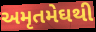
અમૃતમેઘથી